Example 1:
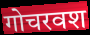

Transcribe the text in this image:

गोचरवश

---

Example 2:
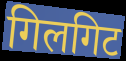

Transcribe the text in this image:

गिलगिट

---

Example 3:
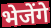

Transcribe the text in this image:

भेजेंगे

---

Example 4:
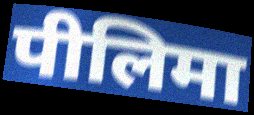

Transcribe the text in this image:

पीलिमा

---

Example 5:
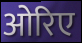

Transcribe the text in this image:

ओरिए